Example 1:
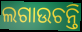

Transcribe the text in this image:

ଲଗାଉଚନ୍ତି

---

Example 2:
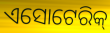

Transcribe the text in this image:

ଏସୋଟେରିକ୍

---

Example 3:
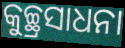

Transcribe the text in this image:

କୁଚ୍ଛ୍ରସାଧନା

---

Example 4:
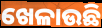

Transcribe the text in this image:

ଖେଳାଉଛି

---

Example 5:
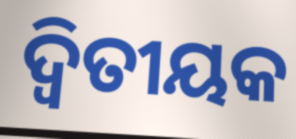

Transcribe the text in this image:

ଦ୍ୱିତୀୟକ